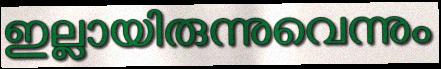
ഇല്ലായിരുന്നുവെന്നും